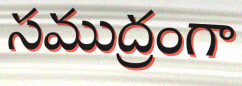
సముద్రంగా